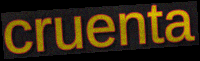
cruenta